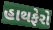
હાથફેરો